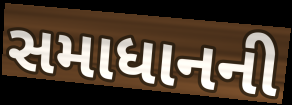
સમાધાનની